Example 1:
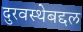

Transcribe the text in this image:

दुरवस्थेबद्दल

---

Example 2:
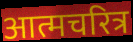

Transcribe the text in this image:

आत्मचरित्र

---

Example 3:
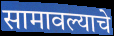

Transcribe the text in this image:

सामावल्याचे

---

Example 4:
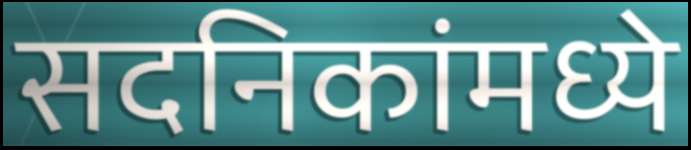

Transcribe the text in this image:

सदनिकांमध्ये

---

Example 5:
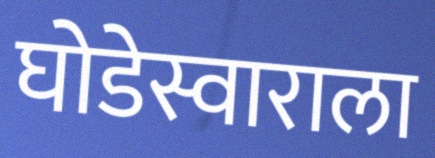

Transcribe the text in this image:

घोडेस्वाराला